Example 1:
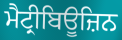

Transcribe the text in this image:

ਮੈਟ੍ਰੀਬਿਊਜ਼ਿਨ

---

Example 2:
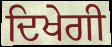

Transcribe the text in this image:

ਦਿਖੇਗੀ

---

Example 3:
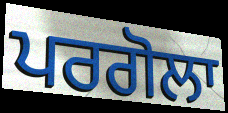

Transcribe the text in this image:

ਪਰਗੋਲਾ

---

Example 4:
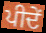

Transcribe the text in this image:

ਪੀਦੇਂ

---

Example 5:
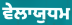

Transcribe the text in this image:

ਵੇਲਾਯੁਧਮ